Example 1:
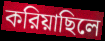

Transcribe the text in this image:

করিয়াছিলে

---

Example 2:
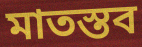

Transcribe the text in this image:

মাতস্তব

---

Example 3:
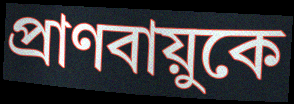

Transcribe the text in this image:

প্রাণবায়ুকে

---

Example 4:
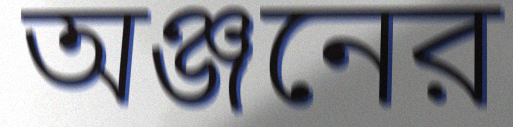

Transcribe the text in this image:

অঞ্জনের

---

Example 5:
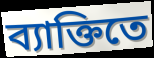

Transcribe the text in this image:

ব্যাক্তিতে